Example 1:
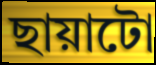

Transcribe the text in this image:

ছায়াটো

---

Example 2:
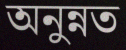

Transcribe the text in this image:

অনুন্নত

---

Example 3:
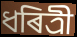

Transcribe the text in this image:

ধৰিত্ৰী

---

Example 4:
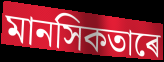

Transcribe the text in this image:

মানসিকতাৰে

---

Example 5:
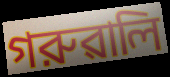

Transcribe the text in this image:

গৰুৱালি